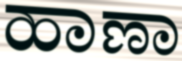
ಹಾಣಾ